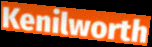
Kenilworth